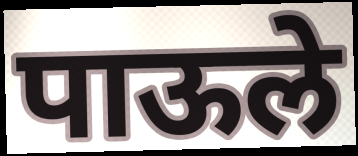
पाऊले